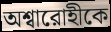
অশ্বারোহীকে